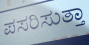
ಪಸರಿಸುತ್ತಾ